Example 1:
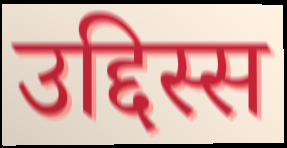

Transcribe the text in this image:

उद्दिस्स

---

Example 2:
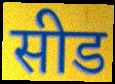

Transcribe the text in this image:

सीड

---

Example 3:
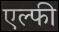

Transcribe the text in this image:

एल्फी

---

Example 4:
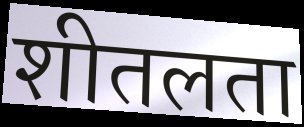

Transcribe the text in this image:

शीतलता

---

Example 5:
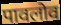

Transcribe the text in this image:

पावलोव